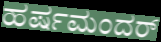
ಹರ್ಷಮಂದರ್